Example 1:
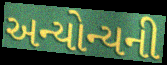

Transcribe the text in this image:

અન્યોન્યની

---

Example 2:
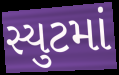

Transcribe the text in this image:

સ્યુટમાં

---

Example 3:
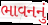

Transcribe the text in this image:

ભાવનનું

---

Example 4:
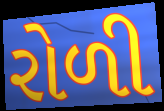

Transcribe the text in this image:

રોળી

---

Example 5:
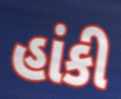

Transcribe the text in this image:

હાંકી